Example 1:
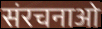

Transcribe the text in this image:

संरचनाओ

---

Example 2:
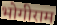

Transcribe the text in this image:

भोगीराम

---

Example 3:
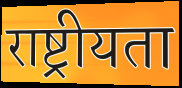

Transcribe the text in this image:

राष्ट्रीयता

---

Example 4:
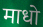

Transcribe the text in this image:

माधो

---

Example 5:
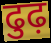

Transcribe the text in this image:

ढुढ़